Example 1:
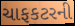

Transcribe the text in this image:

ચાફકટરની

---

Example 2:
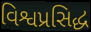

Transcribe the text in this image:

વિશ્વપ્રસિદ્ધ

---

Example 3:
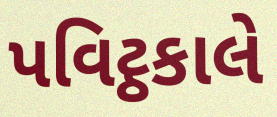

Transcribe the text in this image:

પવિટ્ઠકાલે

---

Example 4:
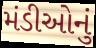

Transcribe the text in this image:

મંડીઓનું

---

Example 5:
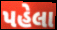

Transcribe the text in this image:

પહેલા